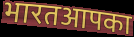
भारतआपका